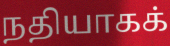
நதியாகக்